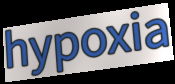
hypoxia